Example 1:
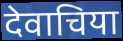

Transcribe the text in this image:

देवाचिया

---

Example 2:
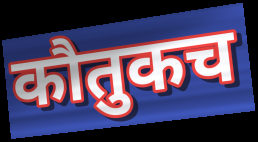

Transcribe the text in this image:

कौतुकच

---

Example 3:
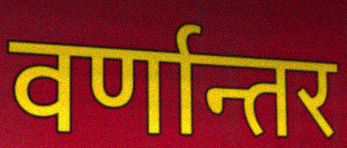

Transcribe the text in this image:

वर्णान्तर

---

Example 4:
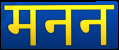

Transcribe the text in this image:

मनन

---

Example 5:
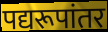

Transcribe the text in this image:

पद्यरूपांतर